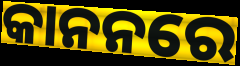
କାନନରେ